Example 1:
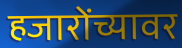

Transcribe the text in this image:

हजारोंच्यावर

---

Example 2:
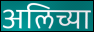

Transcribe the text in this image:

अलिच्या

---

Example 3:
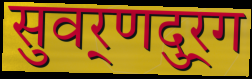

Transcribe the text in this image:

सुवर्णदुर्ग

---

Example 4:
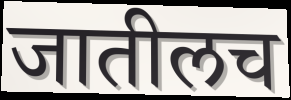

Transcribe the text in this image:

जातीलच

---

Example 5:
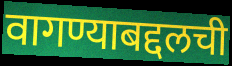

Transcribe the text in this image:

वागण्याबद्दलची